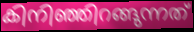
കിനിഞ്ഞിറങ്ങുന്നത്